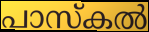
പാസ്കൽ